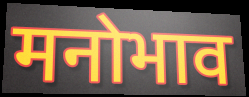
मनोभाव